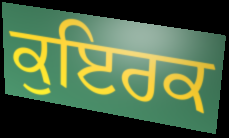
ਕੁਇਰਕ